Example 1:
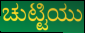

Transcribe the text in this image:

ಚುಟ್ಟಿಯು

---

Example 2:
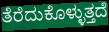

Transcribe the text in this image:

ತೆರೆದುಕೊಳ್ಳುತ್ತದೆ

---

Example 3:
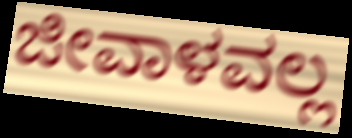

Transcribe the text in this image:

ಜೀವಾಳವಲ್ಲ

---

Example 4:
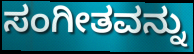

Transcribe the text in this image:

ಸಂಗೀತವನ್ನು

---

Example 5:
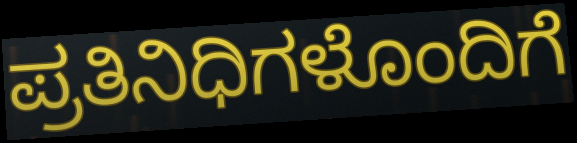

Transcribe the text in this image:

ಪ್ರತಿನಿಧಿಗಳೊಂದಿಗೆ